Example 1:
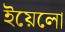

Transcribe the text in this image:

ইয়েলো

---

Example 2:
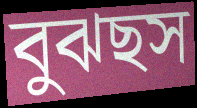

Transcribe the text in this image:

বুঝছস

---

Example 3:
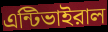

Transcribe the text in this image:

এন্টিভাইরাল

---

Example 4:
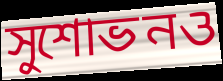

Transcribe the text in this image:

সুশোভনও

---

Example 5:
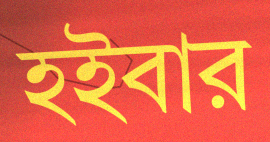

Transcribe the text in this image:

হইবার